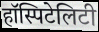
हॉस्पिटेलिटी